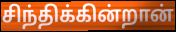
சிந்திக்கின்றான்